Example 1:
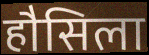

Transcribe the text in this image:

हौसिला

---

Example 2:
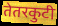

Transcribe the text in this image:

तेतरकुटी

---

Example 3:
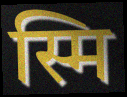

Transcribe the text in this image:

स्मि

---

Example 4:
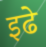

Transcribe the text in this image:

इढे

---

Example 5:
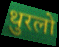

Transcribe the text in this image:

थुरलो